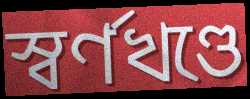
স্বর্ণখণ্ডে